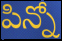
పిన్నో